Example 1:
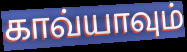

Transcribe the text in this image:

காவ்யாவும்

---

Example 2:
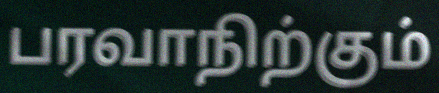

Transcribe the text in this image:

பரவாநிற்கும்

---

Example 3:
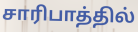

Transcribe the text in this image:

சாரிபாத்தில்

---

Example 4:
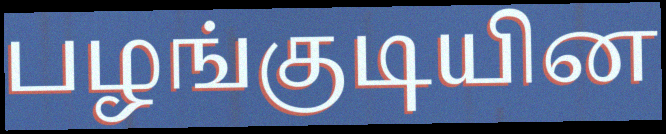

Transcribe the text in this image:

பழங்குடியின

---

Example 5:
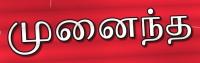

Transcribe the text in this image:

முனைந்த